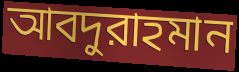
আবদুরাহমান